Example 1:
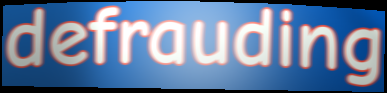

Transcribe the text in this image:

defrauding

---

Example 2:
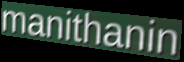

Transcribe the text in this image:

manithanin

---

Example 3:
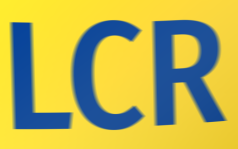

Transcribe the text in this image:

LCR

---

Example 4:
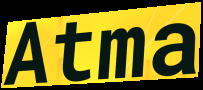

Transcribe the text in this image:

Atma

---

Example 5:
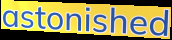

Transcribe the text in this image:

astonished